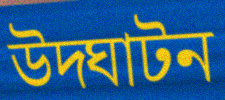
উদ্ঘাটন